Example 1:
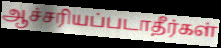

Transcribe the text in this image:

ஆச்சரியப்படாதீர்கள்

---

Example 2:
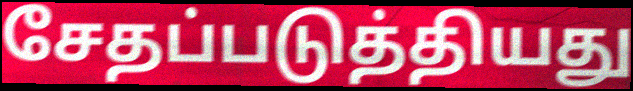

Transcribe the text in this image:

சேதப்படுத்தியது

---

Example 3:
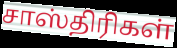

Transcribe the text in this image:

சாஸ்திரிகள்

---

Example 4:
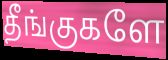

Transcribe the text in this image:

தீங்குகளே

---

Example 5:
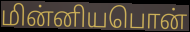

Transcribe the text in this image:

மின்னியபொன்